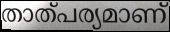
താത്പര്യമാണ്